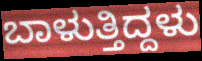
ಬಾಳುತ್ತಿದ್ದಳು